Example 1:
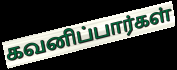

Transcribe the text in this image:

கவனிப்பார்கள்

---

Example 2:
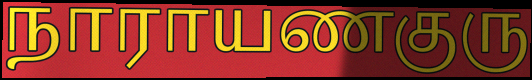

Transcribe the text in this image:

நாராயணகுரு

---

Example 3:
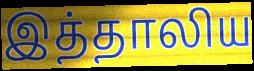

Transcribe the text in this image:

இத்தாலிய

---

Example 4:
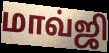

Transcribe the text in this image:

மாவ்ஜி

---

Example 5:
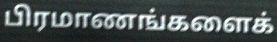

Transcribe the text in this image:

பிரமாணங்களைக்